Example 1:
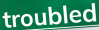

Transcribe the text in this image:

troubled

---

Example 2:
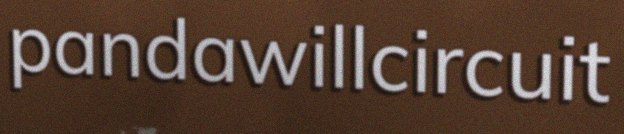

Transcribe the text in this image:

pandawillcircuit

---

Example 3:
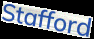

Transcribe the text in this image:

Stafford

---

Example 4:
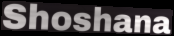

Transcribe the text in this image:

Shoshana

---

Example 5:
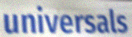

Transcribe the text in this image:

universals